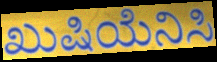
ಖುಷಿಯೆನಿಸಿ